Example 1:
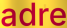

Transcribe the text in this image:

adre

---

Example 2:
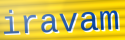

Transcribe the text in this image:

iravam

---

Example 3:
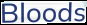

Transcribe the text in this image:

Bloods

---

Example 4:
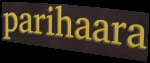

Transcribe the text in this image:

parihaara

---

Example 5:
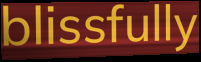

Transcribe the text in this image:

blissfully